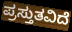
ಪ್ರಸ್ತುತವಿದೆ